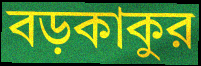
বড়কাকুর